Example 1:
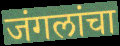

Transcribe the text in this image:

जंगलांचा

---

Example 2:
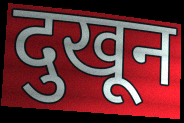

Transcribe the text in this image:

दुखून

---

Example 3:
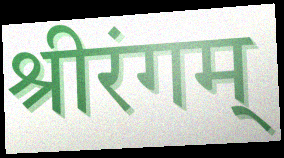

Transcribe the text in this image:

श्रीरंगम्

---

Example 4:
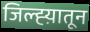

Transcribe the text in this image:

जिल्ह्य़ातून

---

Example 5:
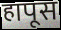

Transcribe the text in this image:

हापूस